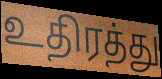
உதிரத்து